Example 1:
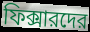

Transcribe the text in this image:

ফিক্সারদের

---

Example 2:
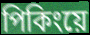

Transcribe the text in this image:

পিকিংয়ে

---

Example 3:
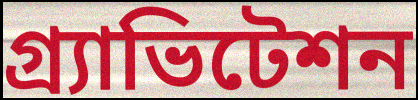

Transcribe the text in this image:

গ্র্যাভিটেশন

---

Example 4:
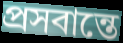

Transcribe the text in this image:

প্রসবান্তে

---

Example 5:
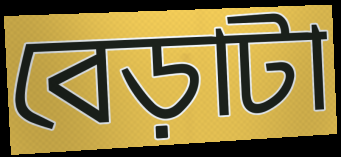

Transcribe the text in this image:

বেড়াটা